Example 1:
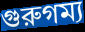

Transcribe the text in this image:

গুরুগম্য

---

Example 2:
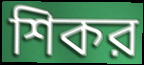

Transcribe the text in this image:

শিকর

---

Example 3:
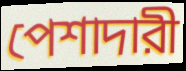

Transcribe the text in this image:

পেশাদারী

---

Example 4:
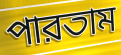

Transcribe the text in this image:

পারতাম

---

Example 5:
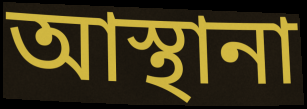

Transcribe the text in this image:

আস্থানা